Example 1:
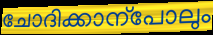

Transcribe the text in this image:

ചോദിക്കാന്പോലും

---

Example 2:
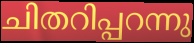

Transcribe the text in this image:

ചിതറിപ്പറന്നു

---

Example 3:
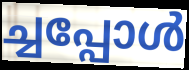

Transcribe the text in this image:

ച്ചപ്പോൾ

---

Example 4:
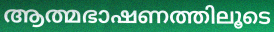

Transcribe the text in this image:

ആത്മഭാഷണത്തിലൂടെ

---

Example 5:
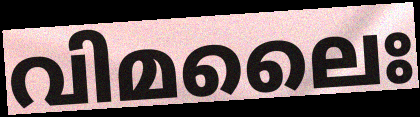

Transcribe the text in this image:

വിമലൈഃ